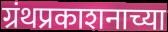
ग्रंथप्रकाशनाच्या